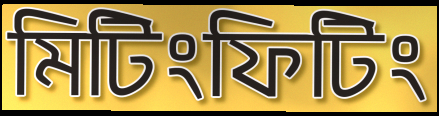
মিটিংফিটিং